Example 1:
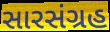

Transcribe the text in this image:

સારસંગ્રહ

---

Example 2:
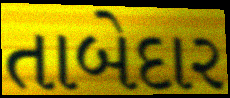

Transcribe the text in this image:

તાબેદાર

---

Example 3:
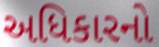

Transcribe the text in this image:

અધિકારનો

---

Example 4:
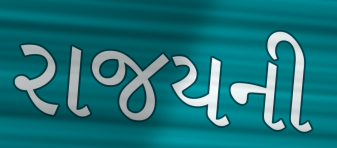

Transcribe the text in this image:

રાજયની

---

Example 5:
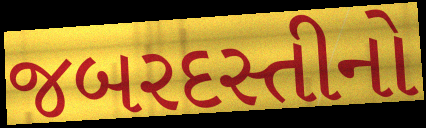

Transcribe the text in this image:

જબરદસ્તીનો